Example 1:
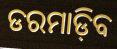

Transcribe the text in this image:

ଡରମାଡ଼ିବ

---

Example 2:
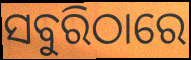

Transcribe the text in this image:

ସବୁରିଠାରେ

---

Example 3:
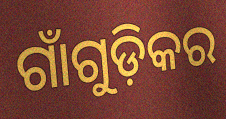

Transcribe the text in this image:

ଗାଁଗୁଡ଼ିକର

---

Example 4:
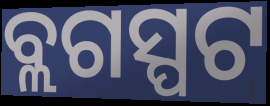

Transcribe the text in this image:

ବ୍ଲଗସ୍ପଟ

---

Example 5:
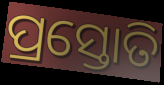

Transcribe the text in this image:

ପ୍ରସ୍ତୋତି